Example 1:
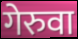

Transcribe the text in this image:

गेरुवा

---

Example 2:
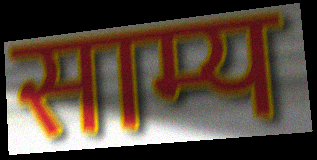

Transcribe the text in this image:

साम्‍य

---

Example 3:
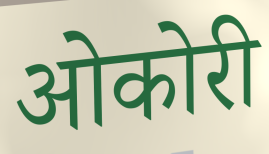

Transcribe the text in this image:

ओकोरी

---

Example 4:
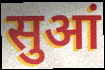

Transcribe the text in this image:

सुआं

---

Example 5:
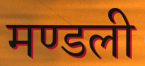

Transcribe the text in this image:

मण्डली